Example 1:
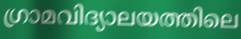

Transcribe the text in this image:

ഗ്രാമവിദ്യാലയത്തിലെ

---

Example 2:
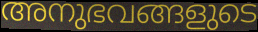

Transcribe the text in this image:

അനുഭവങ്ങളുടെ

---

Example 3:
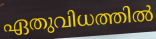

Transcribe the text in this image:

ഏതുവിധത്തിൽ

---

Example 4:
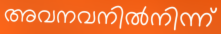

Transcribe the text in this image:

അവനവനിൽനിന്ന്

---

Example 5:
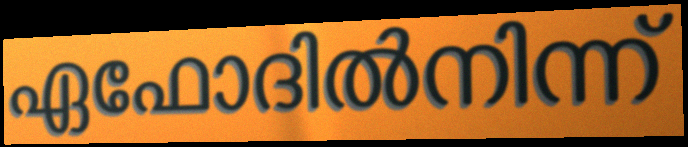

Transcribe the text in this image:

ഏഫോദിൽനിന്ന്